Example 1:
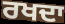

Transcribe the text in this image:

ਰਖਦਾ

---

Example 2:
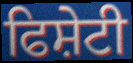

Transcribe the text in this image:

ਫਿਸ਼ੇਟੀ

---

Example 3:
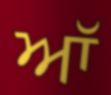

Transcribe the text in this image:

ਆੱ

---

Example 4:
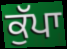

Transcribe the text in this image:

ਕੁੱਪਾ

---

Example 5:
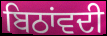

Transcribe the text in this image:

ਬਿਠਾਂਵਦੀ